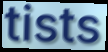
tists